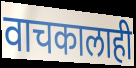
वाचकालाही